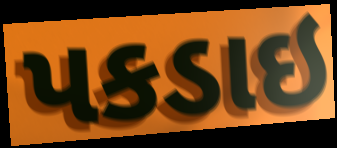
પકડાઇ